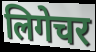
लिगेचर